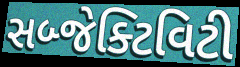
સબ્જેક્ટિવિટી